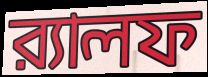
র‍্যালফ